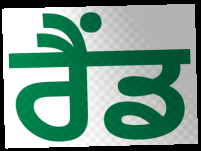
ਰੈਂਡ